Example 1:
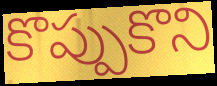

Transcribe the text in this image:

కొప్పుకొని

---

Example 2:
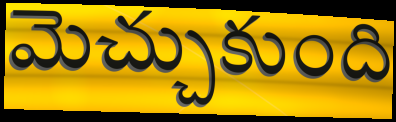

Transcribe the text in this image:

మెచ్చుకుంది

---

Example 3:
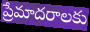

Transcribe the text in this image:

ప్రేమాదరాలకు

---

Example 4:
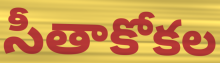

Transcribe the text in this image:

సీతాకోకల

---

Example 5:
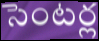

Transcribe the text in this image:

సెంటర్ల